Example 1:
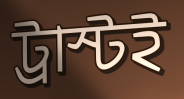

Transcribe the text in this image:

ট্রাস্টই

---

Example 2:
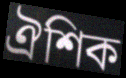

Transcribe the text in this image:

ঐশিক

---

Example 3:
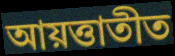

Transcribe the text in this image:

আয়ত্তাতীত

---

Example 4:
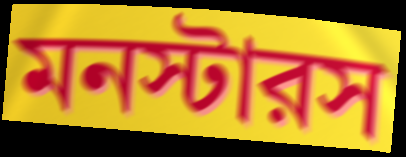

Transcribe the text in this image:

মনস্টারস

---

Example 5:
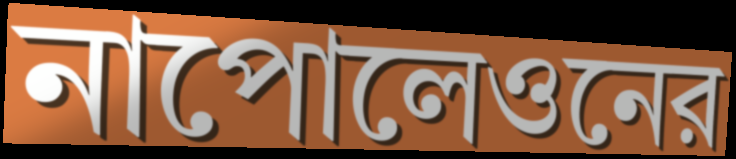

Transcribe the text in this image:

নাপোলেওনের